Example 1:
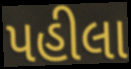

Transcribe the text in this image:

પહીલા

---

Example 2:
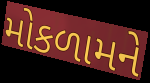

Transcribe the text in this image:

મોકળામને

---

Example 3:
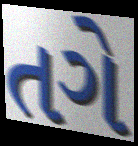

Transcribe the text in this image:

તગે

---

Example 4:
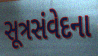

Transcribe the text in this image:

સૂત્રસંવેદના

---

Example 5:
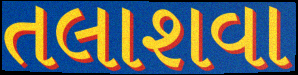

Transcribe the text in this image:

તલાશવા